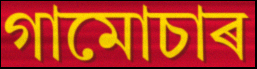
গামোচাৰ